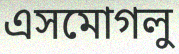
এসমোগলু